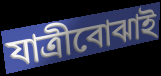
যাত্রীবোঝাই